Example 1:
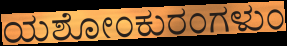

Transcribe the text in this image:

ಯಶೋಂಕುರಂಗಳುಂ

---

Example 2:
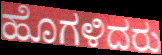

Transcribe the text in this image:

ಹೊಗಳಿದರು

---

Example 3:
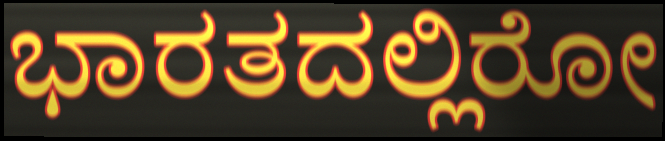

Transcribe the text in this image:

ಭಾರತದಲ್ಲಿರೋ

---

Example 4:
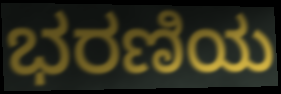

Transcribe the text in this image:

ಭರಣಿಯ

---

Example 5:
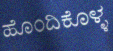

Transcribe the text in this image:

ಹೊಂದಿಕೊಳ್ಳ